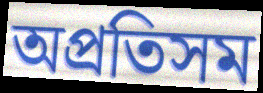
অপ্রতিসম